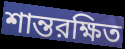
শান্তরক্ষিত